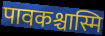
पावकश्चास्मि